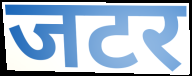
जटर